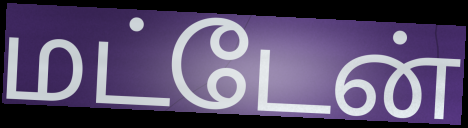
மட்டேன்